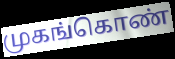
முகங்கொண்